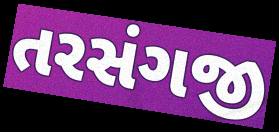
તરસંગજી